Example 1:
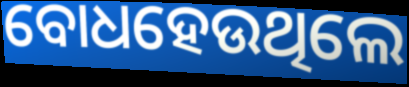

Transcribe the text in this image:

ବୋଧହେଉଥିଲେ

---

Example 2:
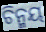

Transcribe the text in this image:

ଚିନ୍ମୟ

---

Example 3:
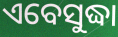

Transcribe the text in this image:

ଏବେସୁଦ୍ଧା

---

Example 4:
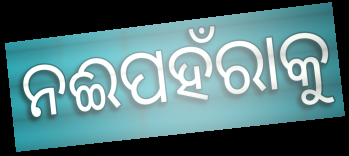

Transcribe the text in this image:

ନଈପହଁରାକୁ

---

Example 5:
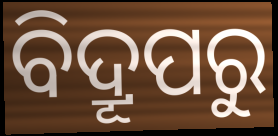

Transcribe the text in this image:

ବିଦ୍ରୂପରୁ